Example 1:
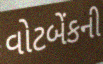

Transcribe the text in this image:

વોટબેંકની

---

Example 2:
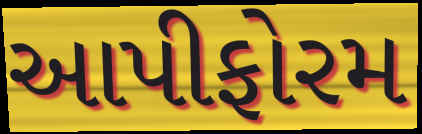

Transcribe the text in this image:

આપીફોરમ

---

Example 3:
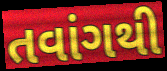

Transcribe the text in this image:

તવાંગથી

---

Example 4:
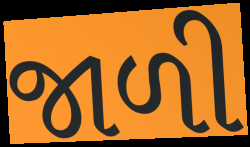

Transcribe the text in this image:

જાળી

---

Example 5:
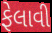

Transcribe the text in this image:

ફેલાવી